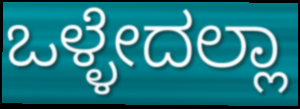
ಒಳ್ಳೇದಲ್ಲಾ